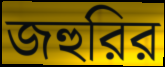
জহুরির